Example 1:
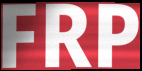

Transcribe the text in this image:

FRP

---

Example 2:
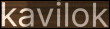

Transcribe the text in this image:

kavilok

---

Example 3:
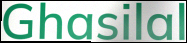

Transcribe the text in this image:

Ghasilal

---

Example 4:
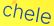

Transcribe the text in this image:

chele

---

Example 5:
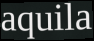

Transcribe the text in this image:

aquila